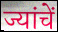
ज्यांचें